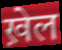
ख़ेल